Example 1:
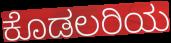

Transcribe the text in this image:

ಕೊಡಲರಿಯ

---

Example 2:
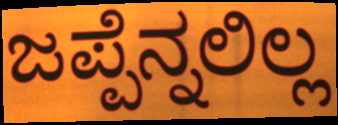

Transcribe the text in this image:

ಜಪ್ಪೆನ್ನಲಿಲ್ಲ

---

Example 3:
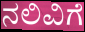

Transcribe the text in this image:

ನಲಿವಿಗೆ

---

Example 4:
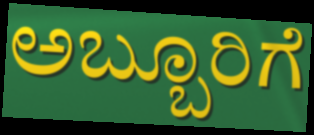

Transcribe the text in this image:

ಅಬ್ಬೂರಿಗೆ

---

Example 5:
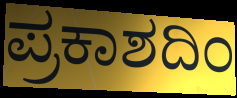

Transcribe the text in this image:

ಪ್ರಕಾಶದಿಂ